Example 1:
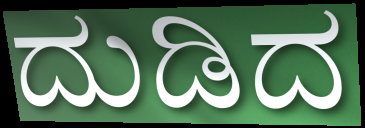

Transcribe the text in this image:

ದುಡಿದ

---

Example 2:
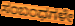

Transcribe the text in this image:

ಸಂಬಂಧಗಳೇ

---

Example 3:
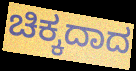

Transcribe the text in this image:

ಚಿಕ್ಕದಾದ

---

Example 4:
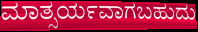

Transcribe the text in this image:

ಮಾತ್ಸರ್ಯವಾಗಬಹುದು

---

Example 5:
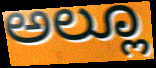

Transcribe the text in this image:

ಅಲ್ಲೂ